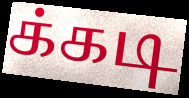
க்கடி